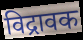
विद्रावक